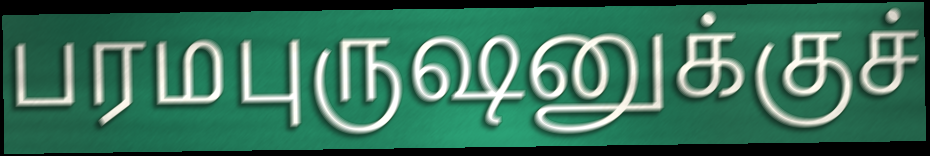
பரமபுருஷனுக்குச்